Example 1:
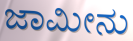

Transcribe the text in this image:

ಜಾಮೀನು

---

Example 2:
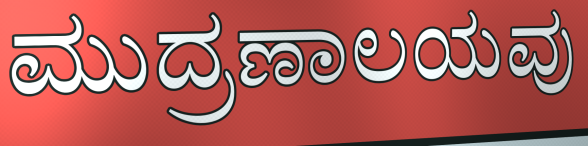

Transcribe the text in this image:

ಮುದ್ರಣಾಲಯವು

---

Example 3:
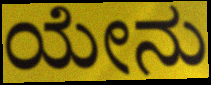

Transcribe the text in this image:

ಯೇನು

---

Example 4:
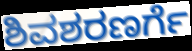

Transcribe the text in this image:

ಶಿವಶರಣರ್ಗೆ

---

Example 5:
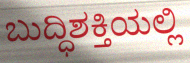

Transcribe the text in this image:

ಬುದ್ಧಿಶಕ್ತಿಯಲ್ಲಿ